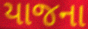
યાજના